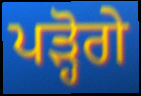
ਪੜ੍ਹੋਗੇ